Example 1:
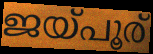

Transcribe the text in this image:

ജയ്പൂര്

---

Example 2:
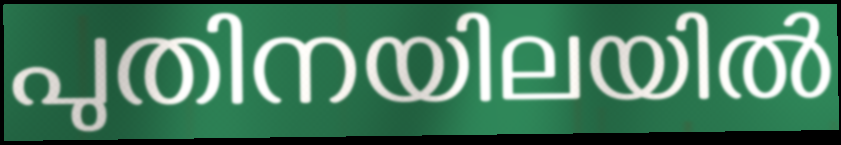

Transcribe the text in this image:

പുതിനയിലയിൽ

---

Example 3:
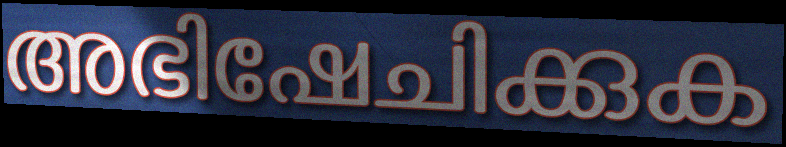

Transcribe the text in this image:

അഭിഷേചിക്കുക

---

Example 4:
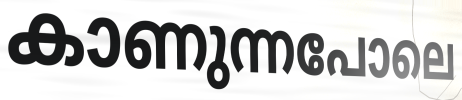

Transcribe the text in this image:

കാണുന്നപോലെ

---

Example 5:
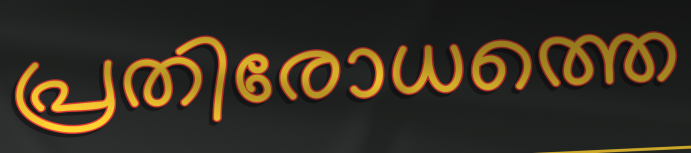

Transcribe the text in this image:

പ്രതിരോധത്തെ